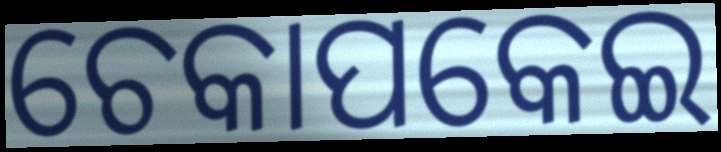
ଚେକାପକେଇ